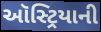
ઑસ્ટ્રિયાની